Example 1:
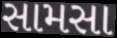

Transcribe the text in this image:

સામસા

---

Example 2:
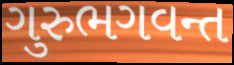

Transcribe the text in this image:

ગુરુભગવન્ત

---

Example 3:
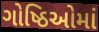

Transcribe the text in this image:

ગોષ્ઠિઓમાં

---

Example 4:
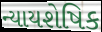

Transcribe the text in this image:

ન્યાયશેષિક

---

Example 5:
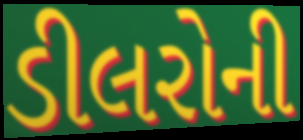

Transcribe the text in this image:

ડીલરોની